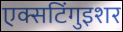
एक्सटिंगुइशर